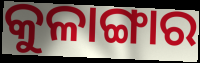
କୁଳାଙ୍ଗାର